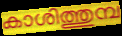
കാശിത്തുമ്പ